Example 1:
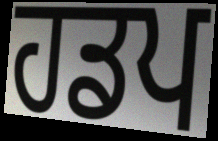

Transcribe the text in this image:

ਹਡਪ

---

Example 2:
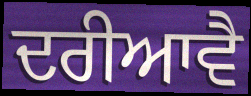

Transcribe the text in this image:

ਦਰੀਆਵੈ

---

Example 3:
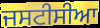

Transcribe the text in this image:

ਜਸਟੀਸੀਆ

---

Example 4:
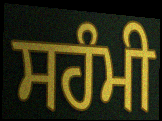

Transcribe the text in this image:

ਸਹੰਮੀ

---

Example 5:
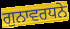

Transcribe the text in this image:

ਗੁਨਾਵਰਧਨੇ